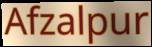
Afzalpur